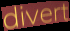
divert